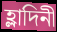
হ্লাদিনী